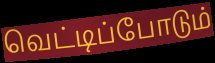
வெட்டிப்போடும்